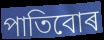
পাতিবোৰ